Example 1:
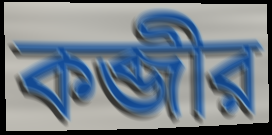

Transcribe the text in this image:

কব্জীর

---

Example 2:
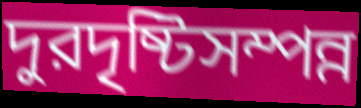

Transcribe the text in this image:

দুরদৃষ্টিসম্পন্ন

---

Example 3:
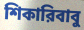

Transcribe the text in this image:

শিকারিবাবু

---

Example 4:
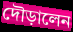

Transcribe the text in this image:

দৌড়ালেন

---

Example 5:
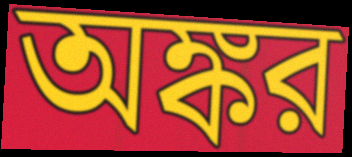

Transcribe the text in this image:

অঙ্কর